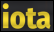
iota